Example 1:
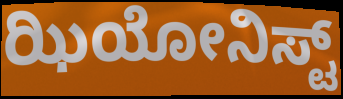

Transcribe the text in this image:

ಝಿಯೋನಿಸ್ಟ್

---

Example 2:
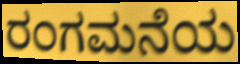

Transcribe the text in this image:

ರಂಗಮನೆಯ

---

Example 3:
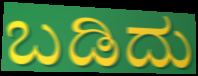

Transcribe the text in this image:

ಬಡಿದು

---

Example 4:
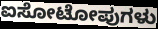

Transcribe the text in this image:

ಐಸೋಟೋಪುಗಳು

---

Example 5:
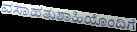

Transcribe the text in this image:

ವಸಾಹತುಶಾಹಿಯೊಂದಿಗೆ